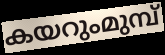
കയറുംമുമ്പ്